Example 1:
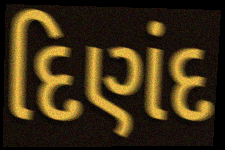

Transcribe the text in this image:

દિણંદ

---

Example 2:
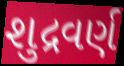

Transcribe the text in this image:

શુદ્રવર્ણ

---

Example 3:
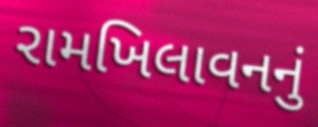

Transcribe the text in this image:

રામખિલાવનનું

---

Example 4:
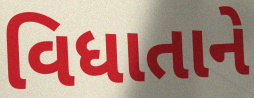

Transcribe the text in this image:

વિધાતાને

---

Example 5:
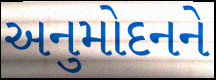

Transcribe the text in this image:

અનુમોદનને